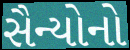
સૈન્યોનો